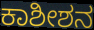
ಕಾಶೀಶನ